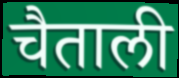
चैताली